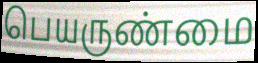
பெயருண்மை